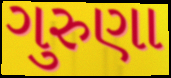
ગુરુણા